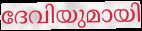
ദേവിയുമായി